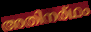
അതിനര്ഥം